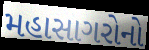
મહાસાગરોનો